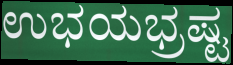
ಉಭಯಭ್ರಷ್ಟ